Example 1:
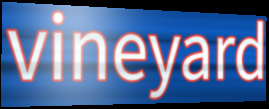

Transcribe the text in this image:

vineyard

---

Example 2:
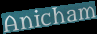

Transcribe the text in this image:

Anicham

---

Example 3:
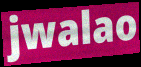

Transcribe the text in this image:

jwalao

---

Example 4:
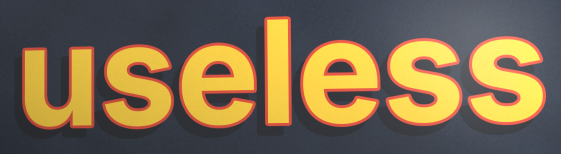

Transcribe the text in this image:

useless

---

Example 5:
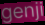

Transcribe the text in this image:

genji